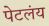
पेटलंय